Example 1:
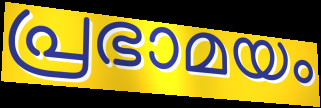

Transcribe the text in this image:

പ്രഭാമയം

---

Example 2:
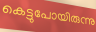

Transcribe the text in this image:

കെട്ടുപോയിരുന്നു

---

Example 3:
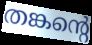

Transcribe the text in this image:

തങ്കന്റെ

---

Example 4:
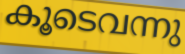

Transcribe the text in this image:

കൂടെവന്നു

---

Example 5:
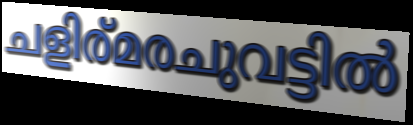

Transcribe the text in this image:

ചളിര്മരചുവട്ടിൽ